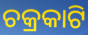
ଚକ୍ରକାଟି